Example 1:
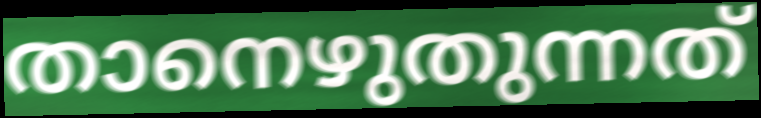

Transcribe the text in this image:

താനെഴുതുന്നത്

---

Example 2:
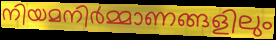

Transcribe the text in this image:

നിയമനിർമ്മാണങ്ങളിലും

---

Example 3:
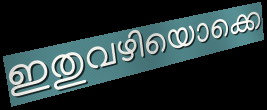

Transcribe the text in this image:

ഇതുവഴിയൊക്കെ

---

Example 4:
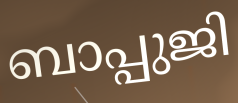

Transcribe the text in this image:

ബാപ്പുജി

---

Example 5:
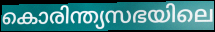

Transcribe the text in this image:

കൊരിന്ത്യസഭയിലെ